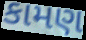
કામણ